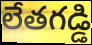
లేతగడ్డి